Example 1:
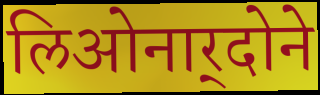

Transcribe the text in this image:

लिओनार्दोने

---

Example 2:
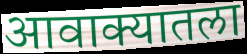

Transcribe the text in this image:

आवाक्यातला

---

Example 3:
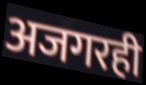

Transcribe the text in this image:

अजगरही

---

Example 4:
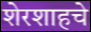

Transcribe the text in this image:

शेरशाहचे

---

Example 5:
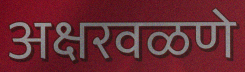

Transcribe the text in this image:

अक्षरवळणे